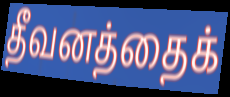
தீவனத்தைக்